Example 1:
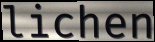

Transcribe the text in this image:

lichen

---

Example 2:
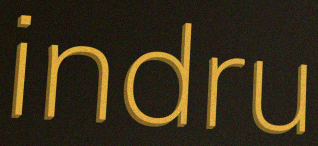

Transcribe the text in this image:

indru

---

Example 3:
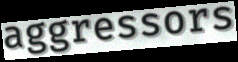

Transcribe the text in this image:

aggressors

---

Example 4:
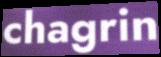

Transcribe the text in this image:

chagrin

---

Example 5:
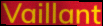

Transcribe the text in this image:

Vaillant